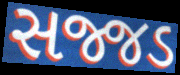
સજ્જડ